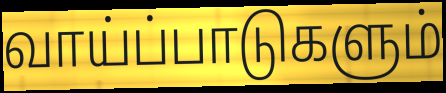
வாய்ப்பாடுகளும்